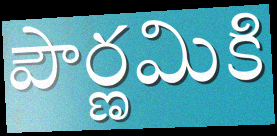
పౌర్ణమికి